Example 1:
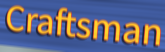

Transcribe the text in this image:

Craftsman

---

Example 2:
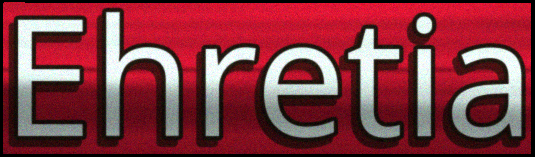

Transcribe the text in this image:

Ehretia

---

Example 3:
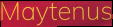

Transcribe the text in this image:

Maytenus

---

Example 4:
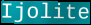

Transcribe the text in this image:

Ijolite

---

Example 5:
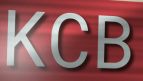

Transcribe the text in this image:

KCB